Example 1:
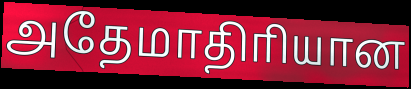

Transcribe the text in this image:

அதேமாதிரியான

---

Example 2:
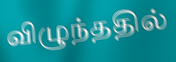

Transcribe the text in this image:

விழுந்ததில்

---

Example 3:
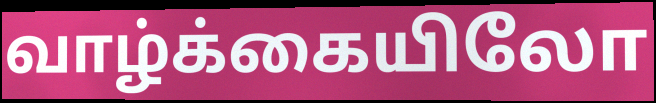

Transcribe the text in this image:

வாழ்க்கையிலோ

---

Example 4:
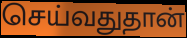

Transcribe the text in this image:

செய்வதுதான்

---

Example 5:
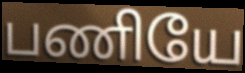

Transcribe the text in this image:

பணியே